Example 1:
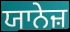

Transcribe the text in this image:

ਯਾਨੇਜ਼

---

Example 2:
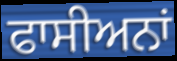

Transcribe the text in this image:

ਫਾਸੀਅਨਾਂ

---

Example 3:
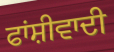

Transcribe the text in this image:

ਫਾਂਸ਼ੀਵਾਦੀ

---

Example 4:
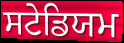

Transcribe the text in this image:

ਸਟੇਡਿਯਮ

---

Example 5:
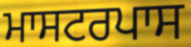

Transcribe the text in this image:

ਮਾਸਟਰਪਾਸ